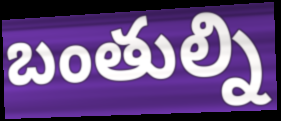
బంతుల్ని